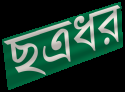
ছত্রধর